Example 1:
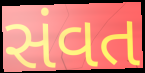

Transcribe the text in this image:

સંવત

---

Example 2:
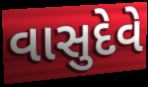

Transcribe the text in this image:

વાસુદેવે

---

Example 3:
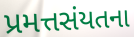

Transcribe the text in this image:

પ્રમત્તસંયતના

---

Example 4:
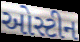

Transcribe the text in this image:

ઓસ્ટીન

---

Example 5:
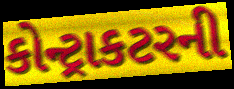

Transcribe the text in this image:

કોન્ટ્રાકટરની